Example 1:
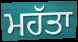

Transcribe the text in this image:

ਮਹੱਤਾ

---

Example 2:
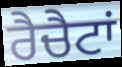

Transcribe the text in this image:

ਰੈਚੈਟਾਂ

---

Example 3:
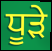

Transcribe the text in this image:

ਧੂੜੇ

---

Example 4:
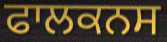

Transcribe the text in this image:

ਫਾਲਕਨਸ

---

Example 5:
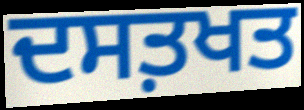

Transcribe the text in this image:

ਦਸਤ਼ਖਤ